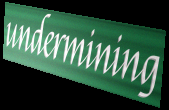
undermining